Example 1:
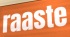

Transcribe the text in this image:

raaste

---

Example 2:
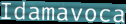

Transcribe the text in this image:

Idamavoca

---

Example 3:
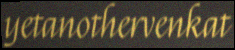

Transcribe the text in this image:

yetanothervenkat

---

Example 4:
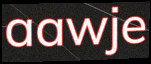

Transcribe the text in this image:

aawje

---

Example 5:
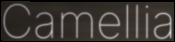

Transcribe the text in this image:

Camellia